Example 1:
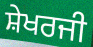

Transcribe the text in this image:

ਸ਼ੇਖਰਜੀ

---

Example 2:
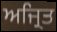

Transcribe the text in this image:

ਅਜ੍ਰਿਤ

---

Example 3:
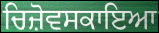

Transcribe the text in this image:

ਚਿਜ਼ੋਵਸਕਾਇਆ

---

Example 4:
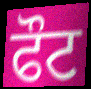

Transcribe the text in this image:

ਫੌਟ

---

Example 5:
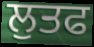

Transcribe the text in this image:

ਲੁਤਫ